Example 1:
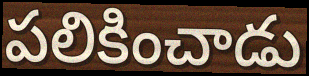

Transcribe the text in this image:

పలికించాడు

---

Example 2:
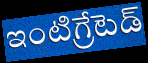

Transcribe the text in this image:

ఇంటిగ్రేటెడ్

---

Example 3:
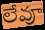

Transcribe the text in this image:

లేవూ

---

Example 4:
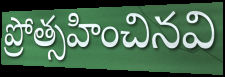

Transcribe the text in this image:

ప్రోత్సహించినవి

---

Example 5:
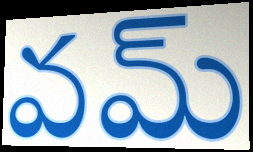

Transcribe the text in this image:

వమ్